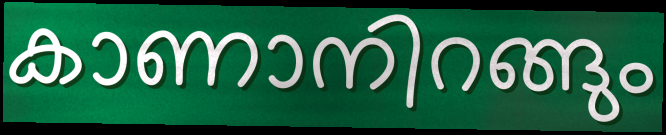
കാണാനിറങ്ങും